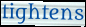
tightens